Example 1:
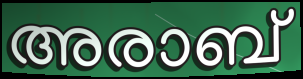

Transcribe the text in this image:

അരാബ്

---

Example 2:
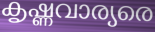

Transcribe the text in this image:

കൃഷ്ണവാര്യരെ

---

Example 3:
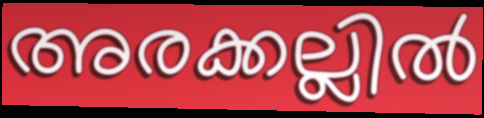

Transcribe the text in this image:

അരക്കല്ലിൽ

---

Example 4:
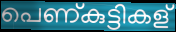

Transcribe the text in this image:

പെണ്കുട്ടികള്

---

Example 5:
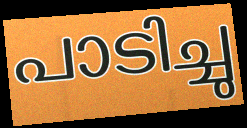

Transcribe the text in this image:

പാടിച്ചു